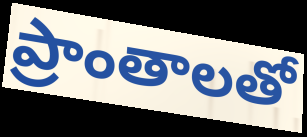
ప్రాంతాలతో